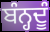
ਬੰਨ੍ਹਦੂੰ